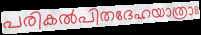
പരികൽപിതദേഹയാത്രാഃ